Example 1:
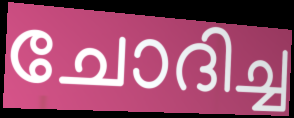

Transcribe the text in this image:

ചോദിച്ച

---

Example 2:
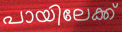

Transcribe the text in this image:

പായിലേക്ക്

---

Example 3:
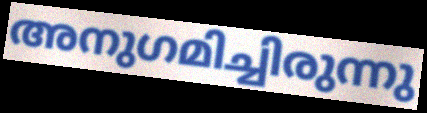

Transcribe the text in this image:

അനുഗമിച്ചിരുന്നു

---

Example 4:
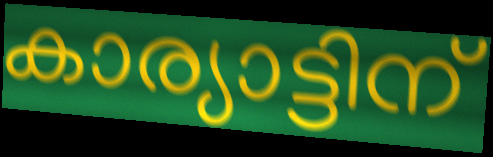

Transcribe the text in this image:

കാര്യാട്ടിന്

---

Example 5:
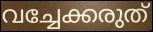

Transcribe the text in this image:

വച്ചേക്കരുത്